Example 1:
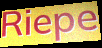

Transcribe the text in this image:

Riepe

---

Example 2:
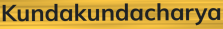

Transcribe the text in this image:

Kundakundacharya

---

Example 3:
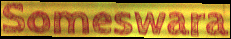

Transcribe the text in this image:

Someswara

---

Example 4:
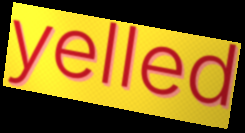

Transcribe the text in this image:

yelled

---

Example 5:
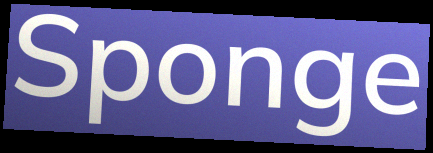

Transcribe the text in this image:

Sponge